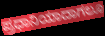
ಪ್ರಧಾನಿಯಾದಾಗಲೂ